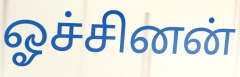
ஓச்சினன்